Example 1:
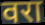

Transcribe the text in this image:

वरा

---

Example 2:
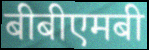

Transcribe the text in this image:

बीबीएमबी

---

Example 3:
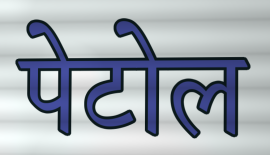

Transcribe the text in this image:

पेटोल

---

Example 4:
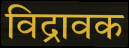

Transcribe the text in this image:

विद्रावक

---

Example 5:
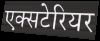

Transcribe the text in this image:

एक्सटेरियर